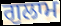
ਗੁਲਾਮ